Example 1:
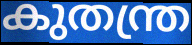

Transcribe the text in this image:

കുതന്ത്ര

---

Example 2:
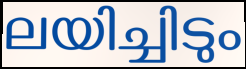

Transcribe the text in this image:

ലയിച്ചിടും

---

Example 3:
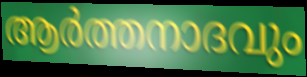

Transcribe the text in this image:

ആർത്തനാദവും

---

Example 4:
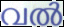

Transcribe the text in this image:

വൽ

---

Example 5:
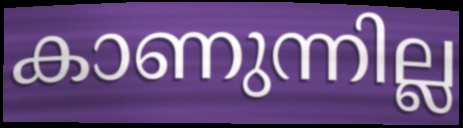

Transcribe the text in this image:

കാണുന്നില്ല